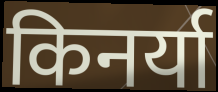
किनर्या